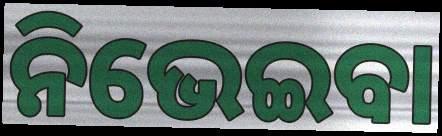
ନିଭେଇବା